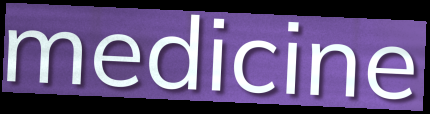
medicine